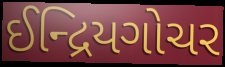
ઈન્દ્રિયગોચર